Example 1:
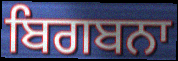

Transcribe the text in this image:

ਬਿਗਬਨਾ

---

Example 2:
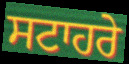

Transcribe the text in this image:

ਸਟਾਹਰੇ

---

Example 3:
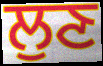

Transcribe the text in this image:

ਲੁਣ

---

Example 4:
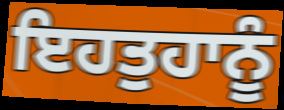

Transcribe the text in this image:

ਇਹਤੁਹਾਨੂੰ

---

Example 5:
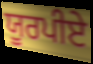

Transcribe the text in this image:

ਯੂਰਪੀਏ